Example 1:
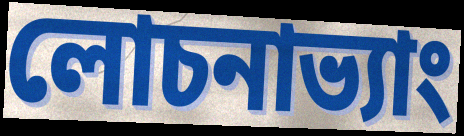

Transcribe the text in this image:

লোচনাভ্যাং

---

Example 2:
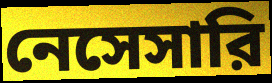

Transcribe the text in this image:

নেসেসারি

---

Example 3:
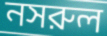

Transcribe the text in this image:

নসরুল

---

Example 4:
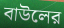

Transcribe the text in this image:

বাউলের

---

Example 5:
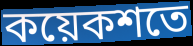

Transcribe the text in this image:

কয়েকশতে